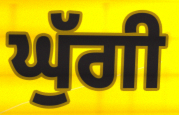
ਘੁੱਗੀ